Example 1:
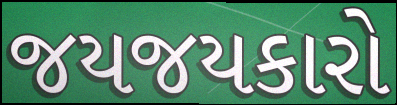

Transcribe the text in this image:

જયજયકારો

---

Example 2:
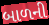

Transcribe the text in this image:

બાળની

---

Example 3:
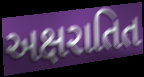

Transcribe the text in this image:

અક્ષરાતિત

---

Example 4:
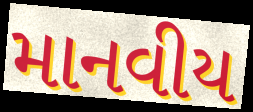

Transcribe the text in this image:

માનવીય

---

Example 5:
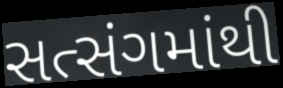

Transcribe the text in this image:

સત્સંગમાંથી